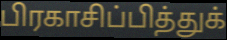
பிரகாசிப்பித்துக்